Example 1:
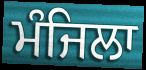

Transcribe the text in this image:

ਮੰਜਿਲਾ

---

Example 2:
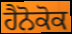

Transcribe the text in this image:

ਹੈਨੋਕੋਕ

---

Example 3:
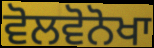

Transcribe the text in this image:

ਵੋਲਵੋਨੋਖਾ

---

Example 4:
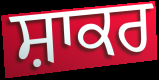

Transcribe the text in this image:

ਸ਼ਾਕਰ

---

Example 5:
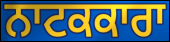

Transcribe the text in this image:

ਨਾਟਕਕਾਰਾ